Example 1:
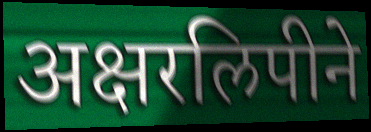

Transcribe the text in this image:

अक्षरलिपीने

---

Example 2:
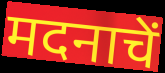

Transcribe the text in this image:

मदनाचें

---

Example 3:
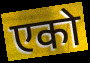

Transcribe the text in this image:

एको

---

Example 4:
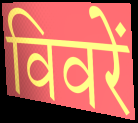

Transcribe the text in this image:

विवरें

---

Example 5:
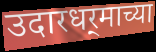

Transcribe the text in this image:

उदारधर्माच्या